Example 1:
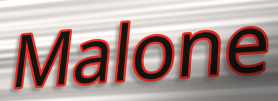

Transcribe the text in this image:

Malone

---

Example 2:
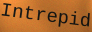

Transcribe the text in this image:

Intrepid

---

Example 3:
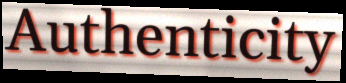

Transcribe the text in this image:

Authenticity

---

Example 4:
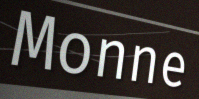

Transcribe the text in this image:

Monne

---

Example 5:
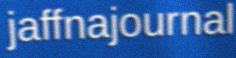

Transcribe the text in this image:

jaffnajournal